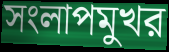
সংলাপমুখর